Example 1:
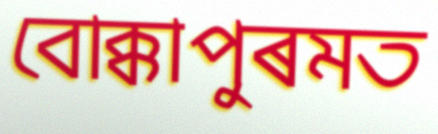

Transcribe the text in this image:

বোক্কাপুৰমত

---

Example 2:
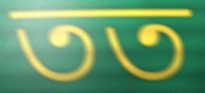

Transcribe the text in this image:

তত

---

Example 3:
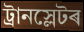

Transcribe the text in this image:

ট্ৰানস্লেটৰ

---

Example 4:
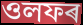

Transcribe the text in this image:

ওলফৰ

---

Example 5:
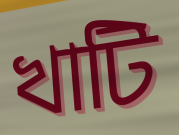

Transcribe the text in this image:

খাটি